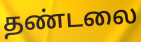
தண்டலை